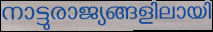
നാട്ടുരാജ്യങ്ങളിലായി